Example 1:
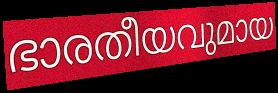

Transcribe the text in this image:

ഭാരതീയവുമായ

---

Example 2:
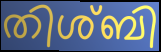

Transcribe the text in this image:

തിശ്ബി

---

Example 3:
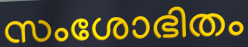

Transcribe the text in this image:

സംശോഭിതം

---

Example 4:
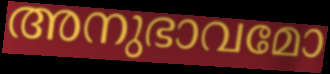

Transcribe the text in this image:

അനുഭാവമോ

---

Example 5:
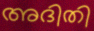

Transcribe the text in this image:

അദിതി